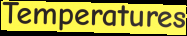
Temperatures